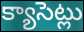
క్యాసెట్లు